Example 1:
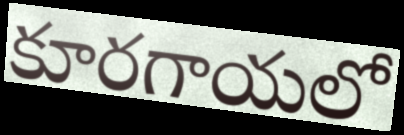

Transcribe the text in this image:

కూరగాయలో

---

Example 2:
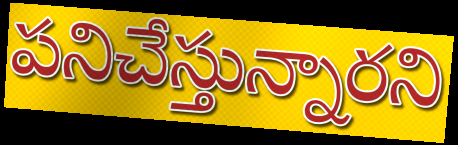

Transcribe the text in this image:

పనిచేస్తున్నారని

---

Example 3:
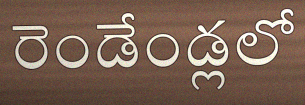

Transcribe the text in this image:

రెండేండ్లలో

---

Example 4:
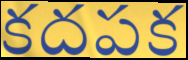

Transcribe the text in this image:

కదపక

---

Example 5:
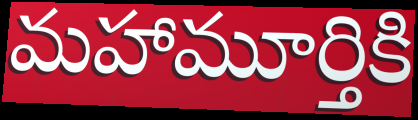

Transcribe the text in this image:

మహామూర్తికి